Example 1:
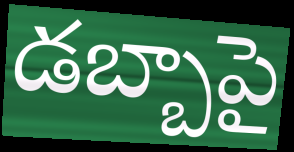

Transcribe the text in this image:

డబ్బాపై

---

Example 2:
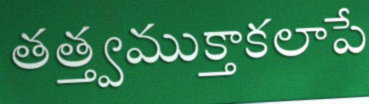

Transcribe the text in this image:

తత్త్వముక్తాకలాపే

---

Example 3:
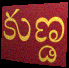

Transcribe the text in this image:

కుణ్డ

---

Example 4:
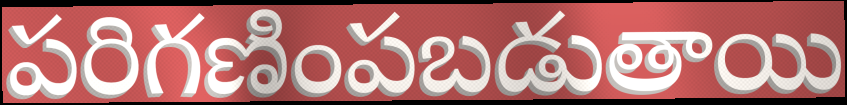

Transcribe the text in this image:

పరిగణింపబడుతాయి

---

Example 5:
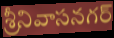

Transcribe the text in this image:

శ్రీనివాసనగర్